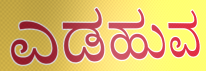
ಎಡಹುವ